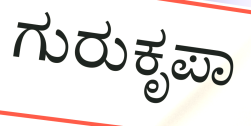
ಗುರುಕೃಪಾ